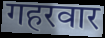
गहरवार